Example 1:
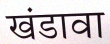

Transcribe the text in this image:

खंडावा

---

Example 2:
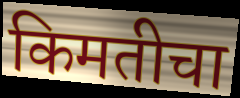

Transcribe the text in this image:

किमतीचा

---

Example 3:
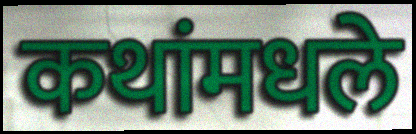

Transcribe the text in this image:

कथांमधले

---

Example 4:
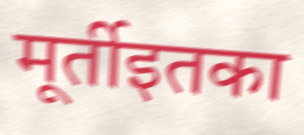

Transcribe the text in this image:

मूर्तीइतका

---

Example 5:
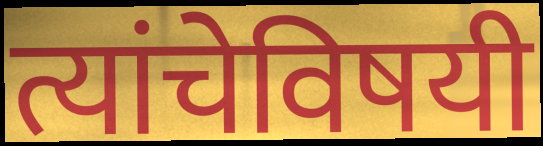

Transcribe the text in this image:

त्यांचेविषयी